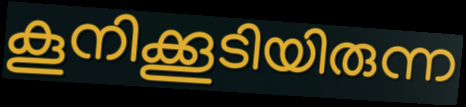
കൂനിക്കൂടിയിരുന്ന